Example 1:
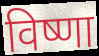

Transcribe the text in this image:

विष्णा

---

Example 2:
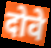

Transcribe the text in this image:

दोवे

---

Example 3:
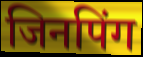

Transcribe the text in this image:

जिनपिंग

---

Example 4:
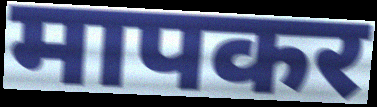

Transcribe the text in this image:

मापकर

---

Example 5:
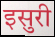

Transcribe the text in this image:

इसुरी